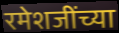
रमेशजींच्या